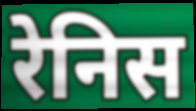
रेनिस